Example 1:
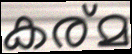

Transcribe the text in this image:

കര്മ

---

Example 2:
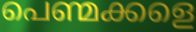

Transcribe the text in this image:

പെണ്മക്കളെ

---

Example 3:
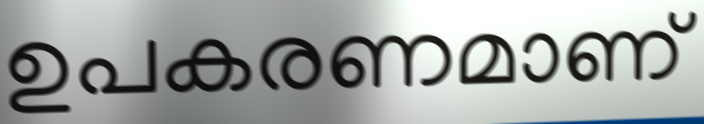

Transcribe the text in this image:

ഉപകരണമാണ്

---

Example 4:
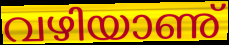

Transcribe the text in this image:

വഴിയാണു്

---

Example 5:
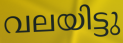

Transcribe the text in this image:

വലയിട്ടു